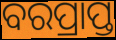
ବରପ୍ରାପ୍ତ